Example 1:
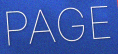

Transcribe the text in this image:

PAGE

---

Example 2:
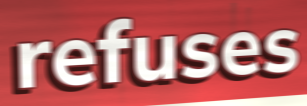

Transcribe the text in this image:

refuses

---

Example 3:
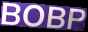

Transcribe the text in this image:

BOBP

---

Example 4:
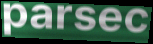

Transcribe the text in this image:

parsec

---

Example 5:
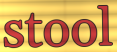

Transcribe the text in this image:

stool